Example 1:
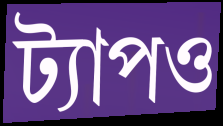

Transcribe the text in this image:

ট্যাপও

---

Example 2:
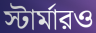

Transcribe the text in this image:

স্টার্মারও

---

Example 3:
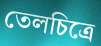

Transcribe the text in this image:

তেলচিত্রে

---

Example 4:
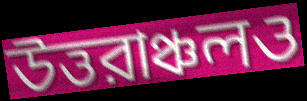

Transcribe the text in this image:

উত্তরাঞ্চলও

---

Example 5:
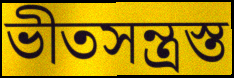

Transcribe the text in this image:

ভীতসন্ত্রস্ত